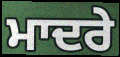
ਮਾਦਰੇ